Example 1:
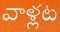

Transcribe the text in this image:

వాళ్లట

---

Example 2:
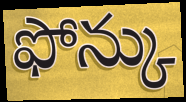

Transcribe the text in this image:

ఫోన్కు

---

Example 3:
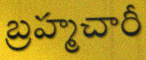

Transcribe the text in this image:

బ్రహ్మచారీ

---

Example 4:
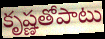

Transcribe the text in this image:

కృష్ణతోపాటు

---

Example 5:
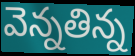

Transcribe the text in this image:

వెన్నతిన్న